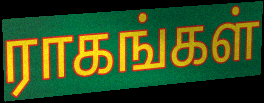
ராகங்கள்